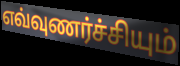
எவ்வுணர்ச்சியும்